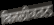
ਬਿਜਲੀਕਰਨ